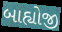
બાહ્યોજી